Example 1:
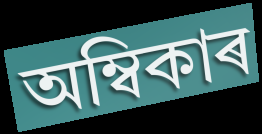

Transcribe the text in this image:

অম্বিকাৰ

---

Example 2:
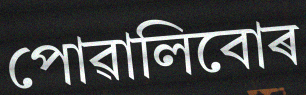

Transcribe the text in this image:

পোৱালিবোৰ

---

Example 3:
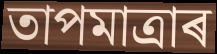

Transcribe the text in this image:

তাপমাত্ৰাৰ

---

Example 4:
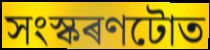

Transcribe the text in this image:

সংস্কৰণটোত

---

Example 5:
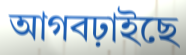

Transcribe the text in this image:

আগবঢ়াইছে